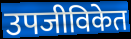
उपजीविकेत